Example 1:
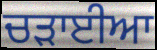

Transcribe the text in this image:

ਚੜਾਈਆ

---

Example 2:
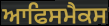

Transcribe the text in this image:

ਆਫਿਸਮੈਕਸ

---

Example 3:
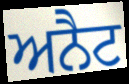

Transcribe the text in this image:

ਅਨੈਟ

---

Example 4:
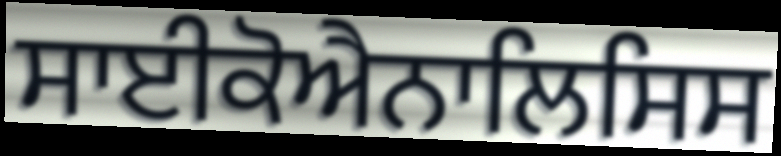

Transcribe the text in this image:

ਸਾਈਕੋਐਨਾਲਿਸਿਸ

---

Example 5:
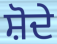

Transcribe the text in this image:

ਸ਼ੋਦੇ